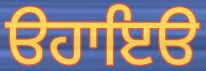
ੳਹਾਇੳ